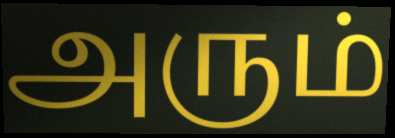
அரும்